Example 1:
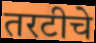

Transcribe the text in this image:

तरटीचे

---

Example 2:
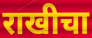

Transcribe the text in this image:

राखीचा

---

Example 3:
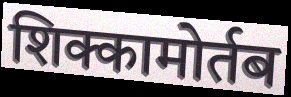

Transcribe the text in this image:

शिक्कामोर्तब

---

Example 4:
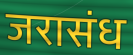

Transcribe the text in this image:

जरासंध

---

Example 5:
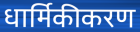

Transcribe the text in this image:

धार्मिकीकरण